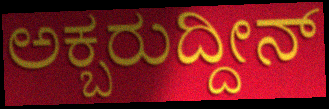
ಅಕ್ಬರುದ್ದೀನ್